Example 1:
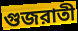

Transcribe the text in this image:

গুজরাতী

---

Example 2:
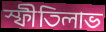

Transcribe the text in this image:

স্ফীতিলাভ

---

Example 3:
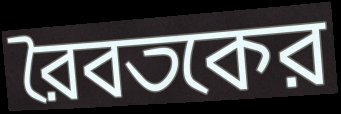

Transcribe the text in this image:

রৈবতকের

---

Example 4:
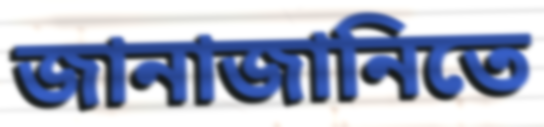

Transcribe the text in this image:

জানাজানিতে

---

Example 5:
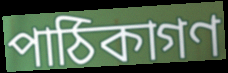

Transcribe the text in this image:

পাঠিকাগণ